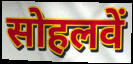
सोहलवें